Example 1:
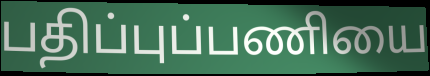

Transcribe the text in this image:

பதிப்புப்பணியை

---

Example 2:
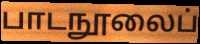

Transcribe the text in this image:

பாடநூலைப்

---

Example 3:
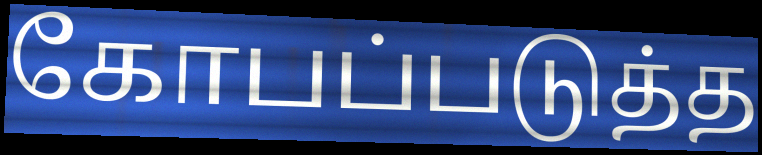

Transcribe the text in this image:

கோபப்படுத்த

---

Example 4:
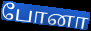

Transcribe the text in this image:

போனா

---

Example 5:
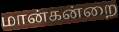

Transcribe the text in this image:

மான்கன்றை